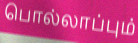
பொல்லாப்பும்